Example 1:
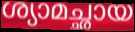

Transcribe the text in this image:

ശ്യാമച്ഛായ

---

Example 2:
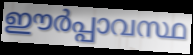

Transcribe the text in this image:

ഈർപ്പാവസ്ഥ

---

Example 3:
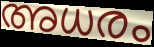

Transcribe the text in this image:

അധരം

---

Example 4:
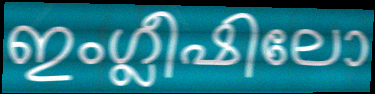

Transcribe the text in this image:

ഇംഗ്ലീഷിലോ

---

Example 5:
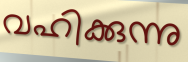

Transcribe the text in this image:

വഹിക്കുന്നു